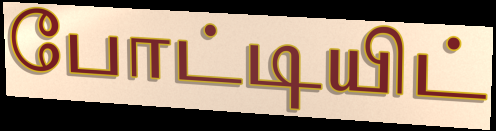
போட்டியிட்